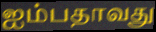
ஐம்பதாவது